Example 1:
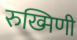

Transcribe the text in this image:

रुख्मिणी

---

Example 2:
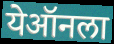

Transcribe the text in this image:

येऑनला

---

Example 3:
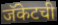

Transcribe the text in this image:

जॅकेटची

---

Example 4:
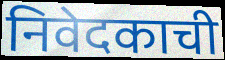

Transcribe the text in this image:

निवेदकाची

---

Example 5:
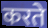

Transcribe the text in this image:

करते